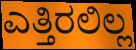
ಎತ್ತಿರಲಿಲ್ಲ